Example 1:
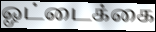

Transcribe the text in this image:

ஓட்டைக்கை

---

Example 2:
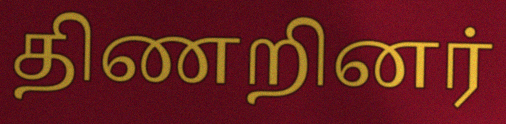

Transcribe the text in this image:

திணறினர்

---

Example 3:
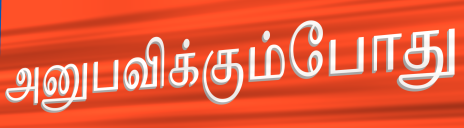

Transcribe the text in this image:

அனுபவிக்கும்போது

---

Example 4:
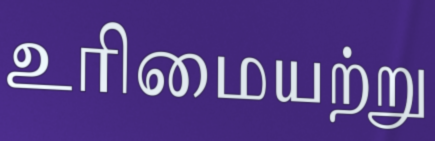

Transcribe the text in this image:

உரிமையற்று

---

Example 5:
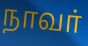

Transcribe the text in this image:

நாவர்